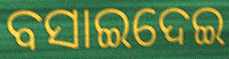
ବସାଇଦେଇ